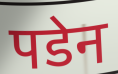
पडेन